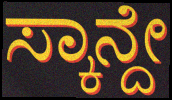
ಸ್ಕಾನ್ದೇ